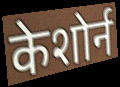
केशोर्न